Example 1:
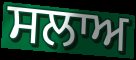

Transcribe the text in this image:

ਸਲਾਅ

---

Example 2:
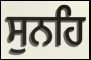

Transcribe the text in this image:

ਸੁਨਹਿ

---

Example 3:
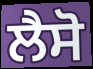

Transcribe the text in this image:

ਲੈਸੋ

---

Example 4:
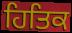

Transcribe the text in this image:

ਹਿਤਿਕ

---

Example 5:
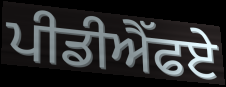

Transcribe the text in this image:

ਪੀਡੀਐੱਫਏ